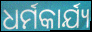
ଧର୍ମକାର୍ଯ୍ୟ